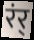
रंर्